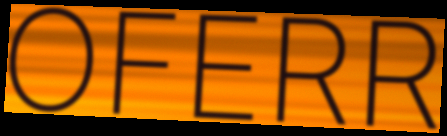
OFERR